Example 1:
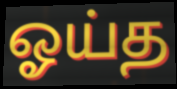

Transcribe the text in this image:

ஓய்த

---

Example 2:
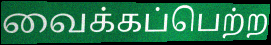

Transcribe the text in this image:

வைக்கப்பெற்ற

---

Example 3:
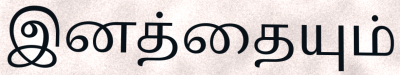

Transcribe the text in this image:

இனத்தையும்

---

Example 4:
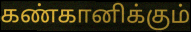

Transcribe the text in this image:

கண்கானிக்கும்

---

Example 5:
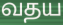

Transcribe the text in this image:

வதய